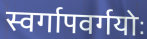
स्वर्गापवर्गयोः